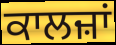
ਕਾਲਜ਼ਾਂ